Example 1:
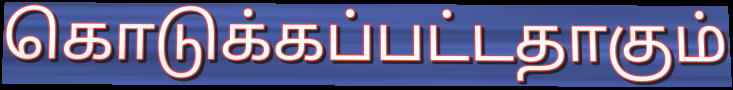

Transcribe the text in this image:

கொடுக்கப்பட்டதாகும்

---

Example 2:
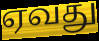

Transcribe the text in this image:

ஏவது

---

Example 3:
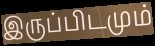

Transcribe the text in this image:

இருப்பிடமும்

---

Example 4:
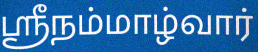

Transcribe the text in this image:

ஸ்ரீநம்மாழ்வார்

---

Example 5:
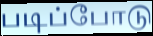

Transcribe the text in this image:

படிப்போடு